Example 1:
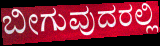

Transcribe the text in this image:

ಬೀಗುವುದರಲ್ಲಿ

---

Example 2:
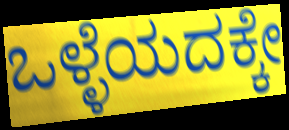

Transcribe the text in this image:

ಒಳ್ಳೆಯದಕ್ಕೇ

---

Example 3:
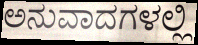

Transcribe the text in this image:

ಅನುವಾದಗಳಲ್ಲಿ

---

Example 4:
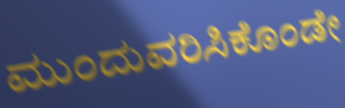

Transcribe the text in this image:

ಮುಂದುವರಿಸಿಕೊಂಡೇ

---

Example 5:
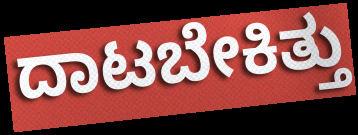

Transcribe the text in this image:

ದಾಟಬೇಕಿತ್ತು